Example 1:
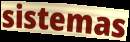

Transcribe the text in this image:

sistemas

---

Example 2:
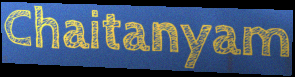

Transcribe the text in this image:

Chaitanyam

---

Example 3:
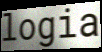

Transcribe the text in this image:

logia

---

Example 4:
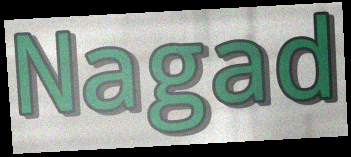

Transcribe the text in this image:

Nagad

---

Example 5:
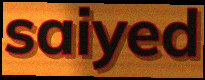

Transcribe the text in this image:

saiyed